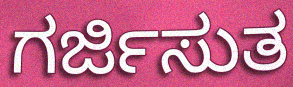
ಗರ್ಜಿಸುತ